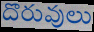
దొరువులు